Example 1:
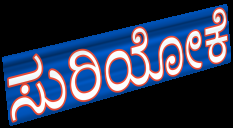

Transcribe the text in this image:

ಸುರಿಯೋಕೆ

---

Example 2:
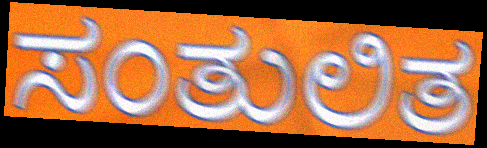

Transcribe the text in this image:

ಸಂತುಲಿತ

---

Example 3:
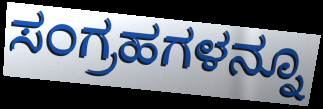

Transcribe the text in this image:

ಸಂಗ್ರಹಗಳನ್ನೂ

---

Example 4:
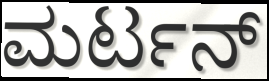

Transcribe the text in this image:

ಮರ್ಟನ್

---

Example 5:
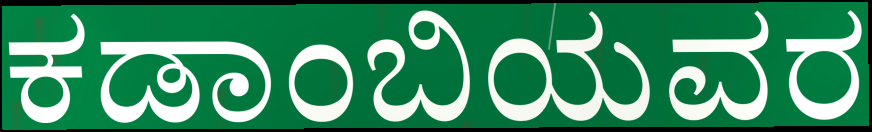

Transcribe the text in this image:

ಕಡಾಂಬಿಯವರ